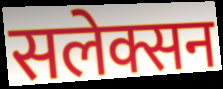
सलेक्सन